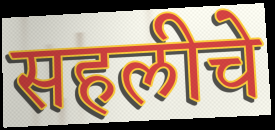
सहलीचे